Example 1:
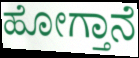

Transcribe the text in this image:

ಹೋಗ್ತಾನೆ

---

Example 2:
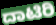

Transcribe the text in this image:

ದಾಟಿರಿ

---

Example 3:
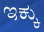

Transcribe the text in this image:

ಇಕ್ಕು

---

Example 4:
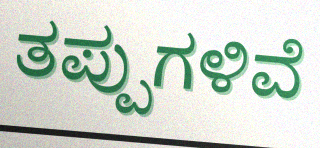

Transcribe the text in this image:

ತಪ್ಪುಗಳಿವೆ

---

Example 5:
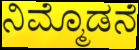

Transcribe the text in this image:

ನಿಮ್ಮೊಡನೆ